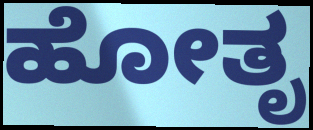
ಹೋತೃ